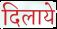
दिलाये